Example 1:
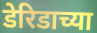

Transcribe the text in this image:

डेरिडाच्या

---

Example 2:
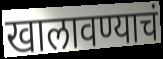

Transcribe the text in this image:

खालावण्याचं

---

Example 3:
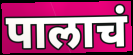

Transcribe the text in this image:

पालाचं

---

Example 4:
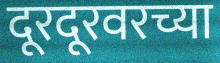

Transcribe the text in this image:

दूरदूरवरच्या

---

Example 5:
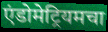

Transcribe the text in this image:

एंडोमेट्रियमचा